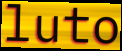
luto